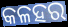
କଳହର